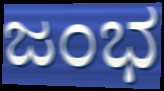
ಜಂಭ